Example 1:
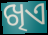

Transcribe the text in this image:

ଖିଏ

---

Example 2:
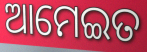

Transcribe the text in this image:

ଆମେଇତ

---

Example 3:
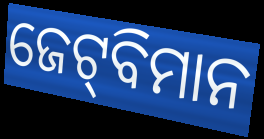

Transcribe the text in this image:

ଜେଟ୍‌ବିମାନ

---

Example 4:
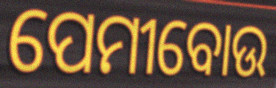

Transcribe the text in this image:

ପେମୀବୋଉ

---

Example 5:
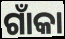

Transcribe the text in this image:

ଗାଁକା